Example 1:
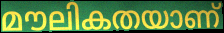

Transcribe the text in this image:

മൗലികതയാണ്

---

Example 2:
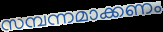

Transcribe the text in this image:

സമ്പന്നമാക്കണം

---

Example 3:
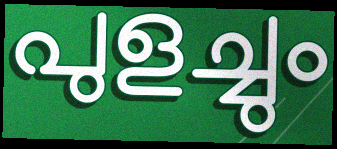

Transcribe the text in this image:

പുളച്ചും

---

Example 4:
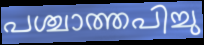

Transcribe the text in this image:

പശ്ചാത്തപിച്ചു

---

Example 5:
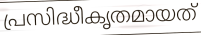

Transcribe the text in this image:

പ്രസിദ്ധീകൃതമായത്